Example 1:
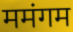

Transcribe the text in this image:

ममंगम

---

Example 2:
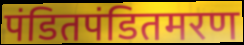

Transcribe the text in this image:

पंडितपंडितमरण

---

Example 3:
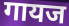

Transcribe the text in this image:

गायज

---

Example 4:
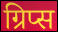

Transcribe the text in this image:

ग्रिप्स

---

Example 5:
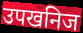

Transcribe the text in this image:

उपखनिज